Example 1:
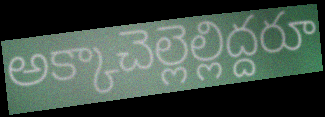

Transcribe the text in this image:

అక్కాచెల్లెల్లిద్దరూ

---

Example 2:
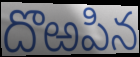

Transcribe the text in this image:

దొఱపిన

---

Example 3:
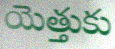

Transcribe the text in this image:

యెత్తుకు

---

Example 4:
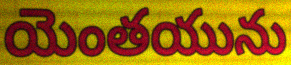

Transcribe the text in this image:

యెంతయును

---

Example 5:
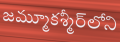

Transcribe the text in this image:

జమ్మూకశ్మీర్‌లోని